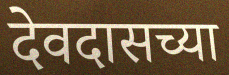
देवदासच्या